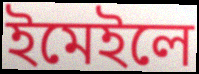
ইমেইলে